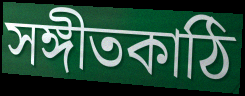
সঙ্গীতকাঠি